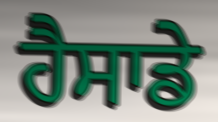
ਹੈਸਾਡੇ